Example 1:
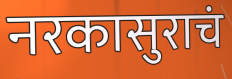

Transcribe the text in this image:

नरकासुराचं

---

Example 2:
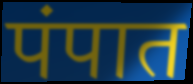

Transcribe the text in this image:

पंपात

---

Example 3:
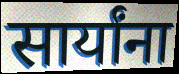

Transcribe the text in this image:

सार्यांना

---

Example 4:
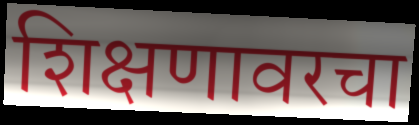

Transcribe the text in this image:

शिक्षणावरचा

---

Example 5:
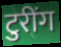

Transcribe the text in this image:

टुरींग